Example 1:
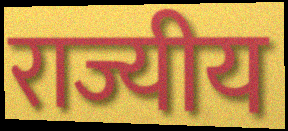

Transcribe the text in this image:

राज्यीय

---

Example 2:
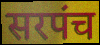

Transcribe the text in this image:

सरपंच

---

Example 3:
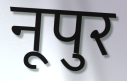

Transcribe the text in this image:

नूपुर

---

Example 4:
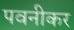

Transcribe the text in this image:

पवनीकर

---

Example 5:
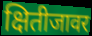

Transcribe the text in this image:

क्षितीजावर